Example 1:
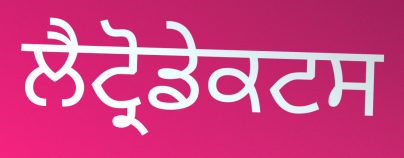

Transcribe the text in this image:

ਲੈਟ੍ਰੋਡੇਕਟਸ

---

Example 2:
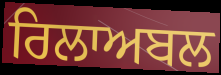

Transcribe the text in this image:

ਰਿਲਾਅਬਲ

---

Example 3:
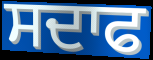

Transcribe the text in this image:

ਸਦਾਫ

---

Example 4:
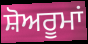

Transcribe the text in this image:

ਸ਼ੋਅਰੂਮਾਂ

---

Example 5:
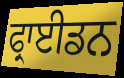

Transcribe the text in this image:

ਫ੍ਰਾਈਡਨ